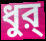
ধুর্